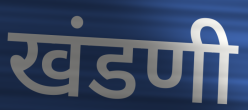
खंडणी